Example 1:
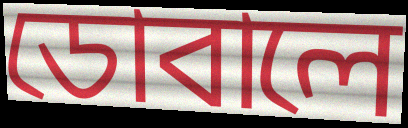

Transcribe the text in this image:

ডোবালে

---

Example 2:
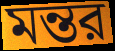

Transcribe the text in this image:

মন্তর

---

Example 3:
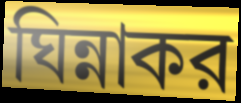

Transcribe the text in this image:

ঘিন্নাকর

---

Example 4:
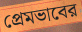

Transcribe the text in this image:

প্রেমভাবের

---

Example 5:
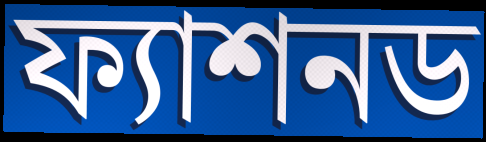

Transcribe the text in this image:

ফ্যাশনড